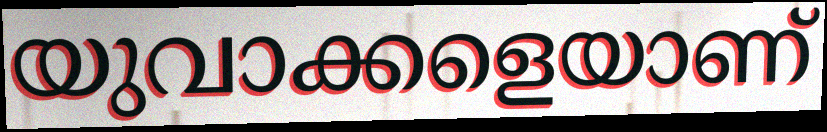
യുവാക്കളെയാണ്